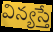
విన్యస్తే